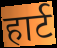
हार्ट